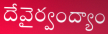
దేవైర్వంద్యాం